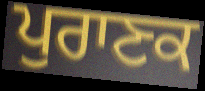
ਪੁਰਾਣਕ